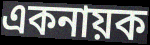
একনায়ক